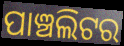
ପାଞ୍ଚଲିଟର